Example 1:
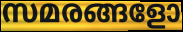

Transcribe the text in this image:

സമരങ്ങളോ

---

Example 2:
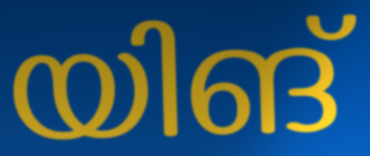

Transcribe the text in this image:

യിങ്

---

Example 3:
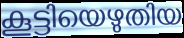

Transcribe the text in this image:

കൂട്ടിയെഴുതിയ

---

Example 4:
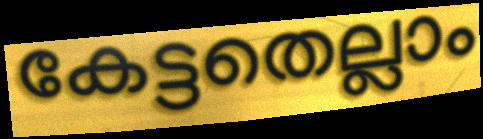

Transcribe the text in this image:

കേട്ടതെല്ലാം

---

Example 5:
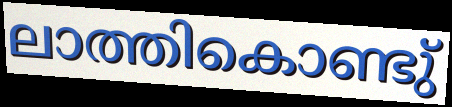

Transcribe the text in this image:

ലാത്തികൊണ്ടു്